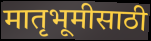
मातृभूमीसाठी